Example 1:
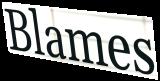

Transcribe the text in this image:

Blames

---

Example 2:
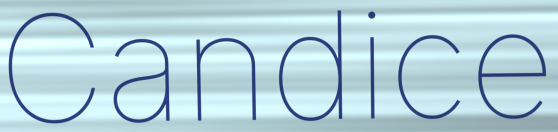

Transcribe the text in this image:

Candice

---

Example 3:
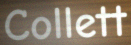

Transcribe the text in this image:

Collett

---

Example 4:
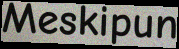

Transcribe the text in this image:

Meskipun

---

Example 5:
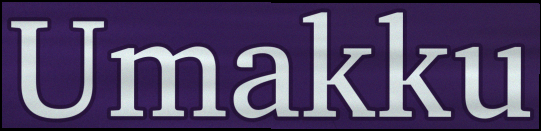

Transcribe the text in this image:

Umakku